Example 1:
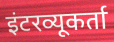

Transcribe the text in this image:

इंटरव्यूकर्ता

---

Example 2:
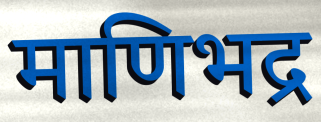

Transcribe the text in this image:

माणिभद्र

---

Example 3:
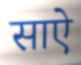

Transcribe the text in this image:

साऐ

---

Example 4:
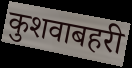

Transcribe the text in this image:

कुशवाबहरी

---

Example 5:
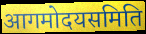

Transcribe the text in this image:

आगमोदयसमिति